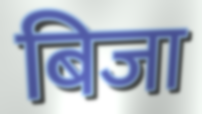
बिजा